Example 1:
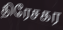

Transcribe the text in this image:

திரேசகர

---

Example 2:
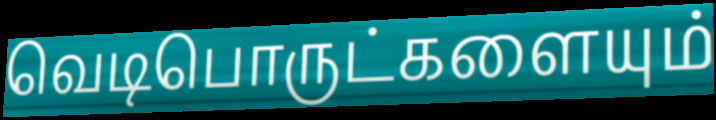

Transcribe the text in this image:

வெடிபொருட்களையும்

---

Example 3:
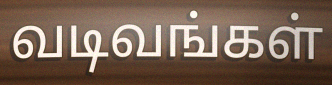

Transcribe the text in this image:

வடிவங்கள்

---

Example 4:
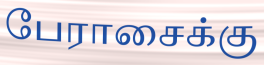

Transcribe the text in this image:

பேராசைக்கு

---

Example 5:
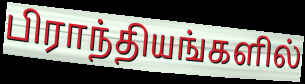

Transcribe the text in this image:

பிராந்தியங்களில்